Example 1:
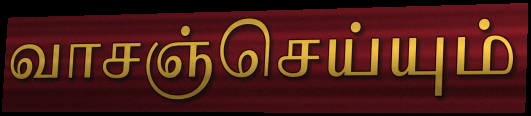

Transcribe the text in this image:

வாசஞ்செய்யும்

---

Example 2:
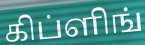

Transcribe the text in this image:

கிப்ளிங்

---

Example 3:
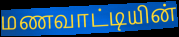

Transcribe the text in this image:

மணவாட்டியின்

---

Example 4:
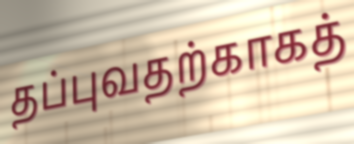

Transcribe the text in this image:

தப்புவதற்காகத்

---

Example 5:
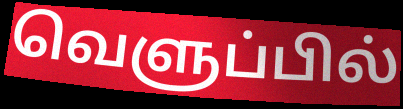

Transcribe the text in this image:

வெளுப்பில்